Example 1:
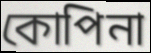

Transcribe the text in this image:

কোপিনা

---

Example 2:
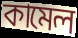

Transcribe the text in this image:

কামেল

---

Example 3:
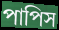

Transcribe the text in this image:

পাপিস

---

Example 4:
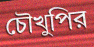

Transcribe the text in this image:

চৌখুপির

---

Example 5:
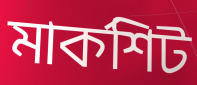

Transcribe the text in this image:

মার্কশিট